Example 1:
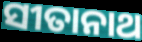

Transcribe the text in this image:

ସୀତାନାଥ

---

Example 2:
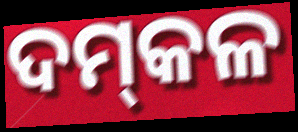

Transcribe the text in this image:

ଦମ୍‌କଳ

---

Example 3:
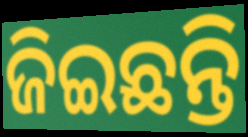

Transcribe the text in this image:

ଜିଇଛନ୍ତି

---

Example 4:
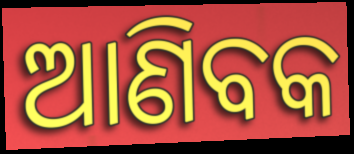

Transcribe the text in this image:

ଆଣିବକ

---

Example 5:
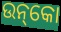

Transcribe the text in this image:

ଉନ୍‌କୋ